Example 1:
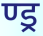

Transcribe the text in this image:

ण्ड्र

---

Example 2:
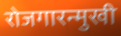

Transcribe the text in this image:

रोजगारन्मुखी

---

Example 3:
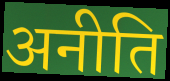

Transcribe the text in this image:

अनीति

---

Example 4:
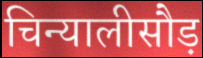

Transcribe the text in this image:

चिन्यालीसौड़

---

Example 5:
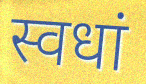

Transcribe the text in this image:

स्वधां